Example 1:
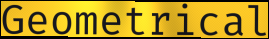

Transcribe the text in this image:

Geometrical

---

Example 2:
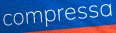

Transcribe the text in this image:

compressa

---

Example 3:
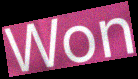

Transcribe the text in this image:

Won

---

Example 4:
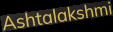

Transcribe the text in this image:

Ashtalakshmi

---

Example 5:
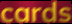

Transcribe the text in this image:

cards